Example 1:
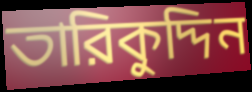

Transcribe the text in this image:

তারিকুদ্দিন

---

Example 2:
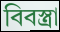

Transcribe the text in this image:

বিবস্ত্রা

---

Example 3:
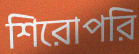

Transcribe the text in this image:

শিরোপরি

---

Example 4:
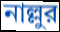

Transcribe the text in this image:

নাল্লুর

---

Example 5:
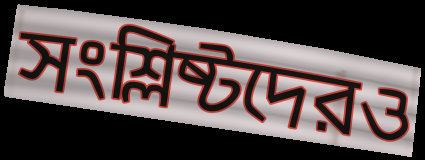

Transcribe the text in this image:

সংশ্লিষ্টদেরও